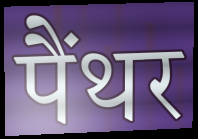
पैंथर